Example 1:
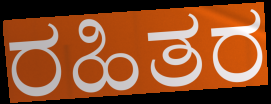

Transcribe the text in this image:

ರಹಿತರ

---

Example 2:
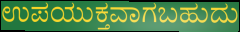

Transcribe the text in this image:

ಉಪಯುಕ್ತವಾಗಬಹುದು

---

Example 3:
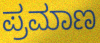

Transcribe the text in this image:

ಪ್ರಮಾಣ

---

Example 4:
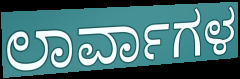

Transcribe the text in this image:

ಲಾರ್ವಾಗಳ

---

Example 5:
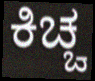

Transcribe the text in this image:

ಕಿಚ್ಚ